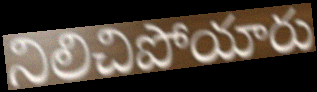
నిలిచిపోయారు